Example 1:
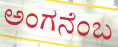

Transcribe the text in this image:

ಅಂಗನೆಂಬ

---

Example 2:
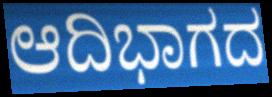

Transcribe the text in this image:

ಆದಿಭಾಗದ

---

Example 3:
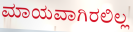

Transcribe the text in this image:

ಮಾಯವಾಗಿರಲಿಲ್ಲ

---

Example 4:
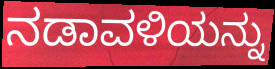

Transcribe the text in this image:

ನಡಾವಳಿಯನ್ನು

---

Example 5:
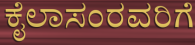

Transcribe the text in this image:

ಕೈಲಾಸಂರವರಿಗೆ